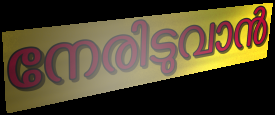
നേരിടുവാൻ